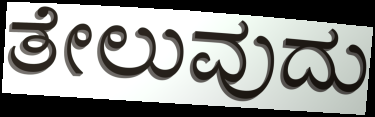
ತೇಲುವುದು